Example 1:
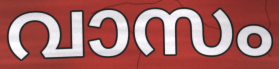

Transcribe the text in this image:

വാസം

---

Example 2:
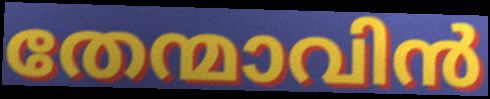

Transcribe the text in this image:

തേന്മാവിൻ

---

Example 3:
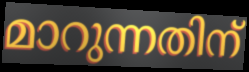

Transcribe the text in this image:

മാറുന്നതിന്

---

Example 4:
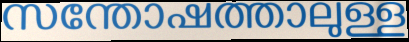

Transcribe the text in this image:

സന്തോഷത്താലുള്ള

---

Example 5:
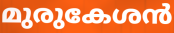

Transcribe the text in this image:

മുരുകേശൻ